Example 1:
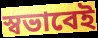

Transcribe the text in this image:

স্বভাবেই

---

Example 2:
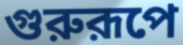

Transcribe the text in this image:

গুরুরূপে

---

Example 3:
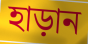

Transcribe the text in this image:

হাড়ান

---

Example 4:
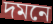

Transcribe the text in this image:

দমনে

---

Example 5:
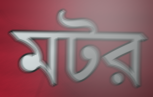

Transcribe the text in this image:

মটর